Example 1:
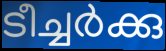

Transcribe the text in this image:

ടീച്ചർക്കു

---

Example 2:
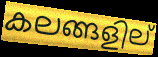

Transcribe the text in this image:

കലങ്ങളില്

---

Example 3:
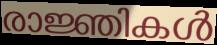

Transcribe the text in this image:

രാജ്ഞികൾ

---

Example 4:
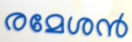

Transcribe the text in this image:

രമേശൻ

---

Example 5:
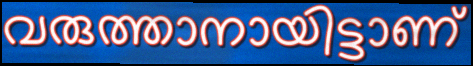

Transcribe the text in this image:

വരുത്താനായിട്ടാണ്